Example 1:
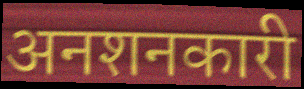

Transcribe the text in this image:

अनशनकारी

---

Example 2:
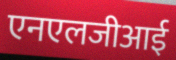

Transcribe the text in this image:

एनएलजीआई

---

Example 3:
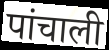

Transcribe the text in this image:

पांचाली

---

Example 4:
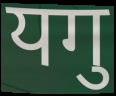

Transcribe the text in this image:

यगु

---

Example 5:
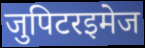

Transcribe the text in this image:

जुपिटरइमेज